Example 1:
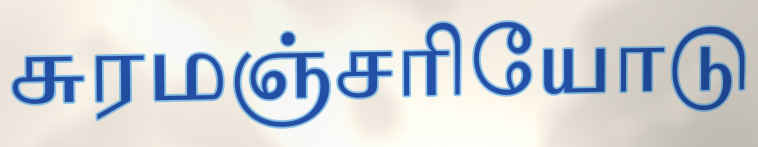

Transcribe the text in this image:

சுரமஞ்சரியோடு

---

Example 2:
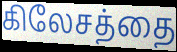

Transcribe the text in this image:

கிலேசத்தை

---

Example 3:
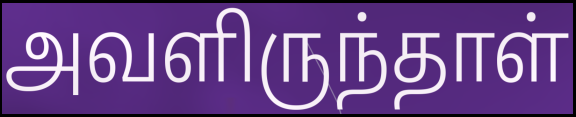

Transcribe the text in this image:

அவளிருந்தாள்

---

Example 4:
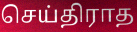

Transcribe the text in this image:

செய்திராத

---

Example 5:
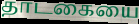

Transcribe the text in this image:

தாடகையை